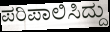
ಪರಿಪಾಲಿಸಿದ್ದು